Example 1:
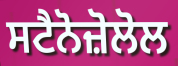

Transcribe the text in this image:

ਸਟੈਨੋਜ਼ੋਲੋਲ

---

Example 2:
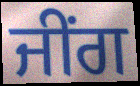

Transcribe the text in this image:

ਜੀਂਗ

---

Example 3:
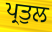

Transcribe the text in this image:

ਪ੍ਰਤੁਲ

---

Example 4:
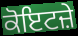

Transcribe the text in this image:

ਕੋਇਟਜ਼ੇ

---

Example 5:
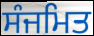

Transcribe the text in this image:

ਸੰਜਮਿਤ